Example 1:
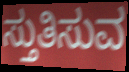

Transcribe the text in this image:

ಸ್ತುತಿಸುವ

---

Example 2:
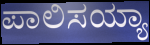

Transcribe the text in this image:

ಪಾಲಿಸಯ್ಯಾ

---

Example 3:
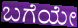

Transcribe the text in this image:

ಬಗೆಯೇ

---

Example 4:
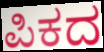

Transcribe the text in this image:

ಪಿಕದ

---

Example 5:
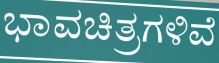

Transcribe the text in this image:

ಭಾವಚಿತ್ರಗಳಿವೆ